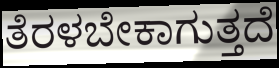
ತೆರಳಬೇಕಾಗುತ್ತದೆ